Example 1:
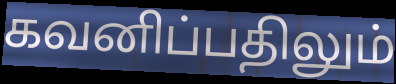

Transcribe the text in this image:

கவனிப்பதிலும்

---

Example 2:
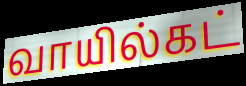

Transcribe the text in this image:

வாயில்கட்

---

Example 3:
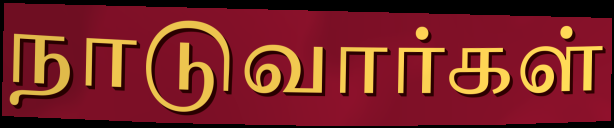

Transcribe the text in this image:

நாடுவார்கள்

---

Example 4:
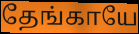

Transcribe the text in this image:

தேங்காயே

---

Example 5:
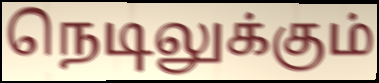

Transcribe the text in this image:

நெடிலுக்கும்